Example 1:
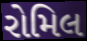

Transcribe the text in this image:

રોમિલ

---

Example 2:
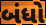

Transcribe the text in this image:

બંધો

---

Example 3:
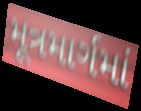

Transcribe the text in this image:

મૂત્રમાર્ગમાં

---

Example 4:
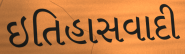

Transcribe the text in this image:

ઇતિહાસવાદી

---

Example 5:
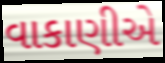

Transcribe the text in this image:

વાકાણીએ